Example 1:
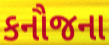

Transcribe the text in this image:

કનૌજના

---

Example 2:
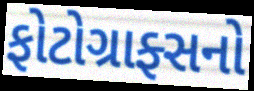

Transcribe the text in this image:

ફોટોગ્રાફ્સનો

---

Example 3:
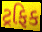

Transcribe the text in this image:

ટ્રફિક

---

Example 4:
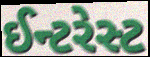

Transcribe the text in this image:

ઈન્ટરેસ્ટ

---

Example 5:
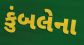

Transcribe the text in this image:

કુંબલેના